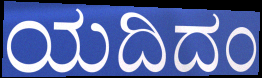
ಯದಿದಂ